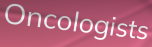
Oncologists